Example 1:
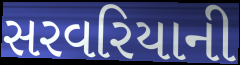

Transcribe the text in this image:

સરવરિયાની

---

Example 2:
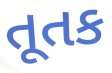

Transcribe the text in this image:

તૂતક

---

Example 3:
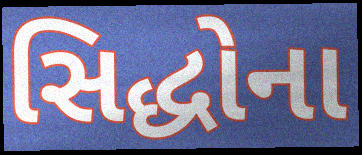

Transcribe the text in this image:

સિદ્ધોના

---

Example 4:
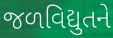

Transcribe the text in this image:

જળવિદ્યુતને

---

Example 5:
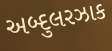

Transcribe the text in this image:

અબ્દુલરઝાક